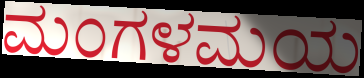
ಮಂಗಳಮಯ